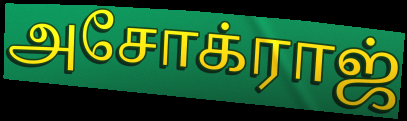
அசோக்ராஜ்